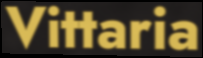
Vittaria